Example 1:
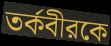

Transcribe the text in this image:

তর্কবীরকে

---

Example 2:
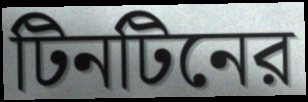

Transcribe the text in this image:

টিনটিনের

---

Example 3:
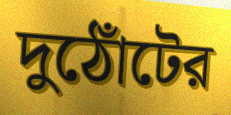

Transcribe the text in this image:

দুঠোঁটের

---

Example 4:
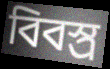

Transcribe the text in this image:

বিবস্ত্র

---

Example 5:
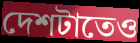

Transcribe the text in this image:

দেশটাতেও